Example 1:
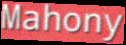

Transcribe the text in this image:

Mahony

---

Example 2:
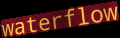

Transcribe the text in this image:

waterflow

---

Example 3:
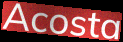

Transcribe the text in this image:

Acosta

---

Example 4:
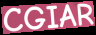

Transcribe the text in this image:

CGIAR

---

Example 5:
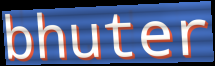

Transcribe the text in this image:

bhuter